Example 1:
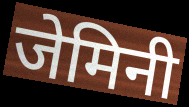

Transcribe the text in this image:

जेमिनी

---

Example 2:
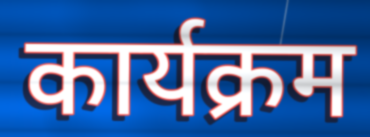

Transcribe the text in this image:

कार्यक्रम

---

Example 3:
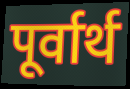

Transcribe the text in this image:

पूर्वार्थ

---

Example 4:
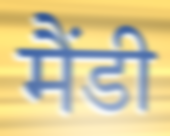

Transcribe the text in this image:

मैंडी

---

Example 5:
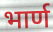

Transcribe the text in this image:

भार्ण